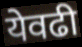
येवढी